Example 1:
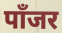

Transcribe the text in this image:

पाँजर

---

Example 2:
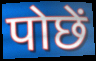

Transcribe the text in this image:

पोछें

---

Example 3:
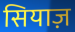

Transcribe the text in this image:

सियाज़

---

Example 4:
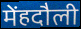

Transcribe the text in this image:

मेंहदौली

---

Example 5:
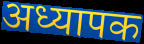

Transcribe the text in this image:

अध्यापक